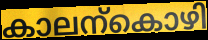
കാലന്കൊഴി